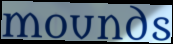
mounds